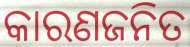
କାରଣଜନିତ